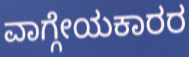
ವಾಗ್ಗೇಯಕಾರರ